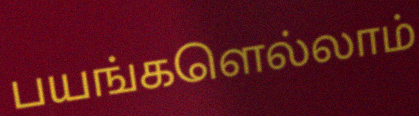
பயங்களெல்லாம்